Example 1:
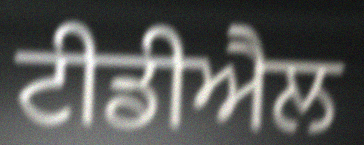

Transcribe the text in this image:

ਟੀਡੀਐਲ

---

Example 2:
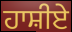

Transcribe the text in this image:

ਹਾਸ਼ੀਏ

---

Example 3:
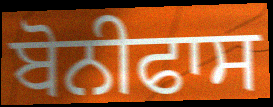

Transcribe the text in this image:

ਬੋਨੀਫਾਸ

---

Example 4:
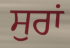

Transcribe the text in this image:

ਸੁਰਾਂ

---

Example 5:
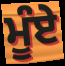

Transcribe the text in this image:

ਮੂੰਏ